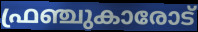
ഫ്രഞ്ചുകാരോട്